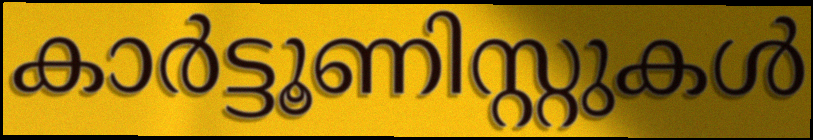
കാർട്ടൂണിസ്റ്റുകൾ